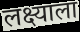
लक्ष्याला